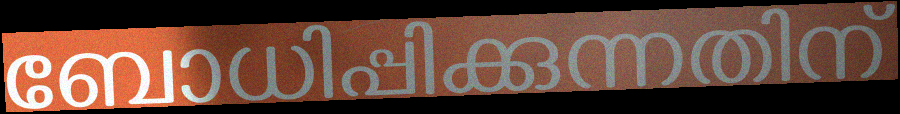
ബോധിപ്പിക്കുന്നതിന്